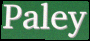
Paley